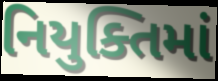
નિયુક્તિમાં